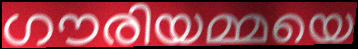
ഗൗരിയമ്മയെ